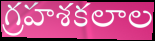
గ్రహశకలాల